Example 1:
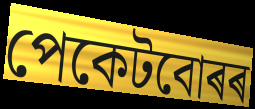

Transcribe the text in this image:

পেকেটবোৰৰ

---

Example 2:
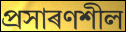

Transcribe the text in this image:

প্ৰসাৰণশীল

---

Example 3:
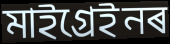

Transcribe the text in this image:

মাইগ্ৰেইনৰ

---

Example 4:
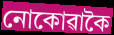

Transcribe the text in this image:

নোকোৱাকৈ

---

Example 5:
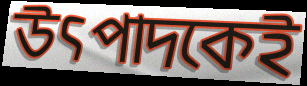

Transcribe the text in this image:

উৎপাদকেই